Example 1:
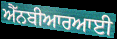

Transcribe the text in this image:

ਐੱਨਬੀਆਰਆਈ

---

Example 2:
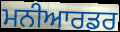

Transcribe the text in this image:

ਮਨੀਆਰਡਰ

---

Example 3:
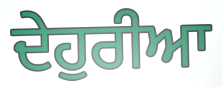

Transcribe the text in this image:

ਦੇਹੁਰੀਆ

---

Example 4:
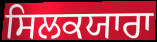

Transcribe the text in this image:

ਸਿਲਕਯਾਰਾ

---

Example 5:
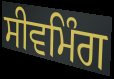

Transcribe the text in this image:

ਸੀਵਮਿੰਗ